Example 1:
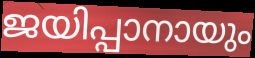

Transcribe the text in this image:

ജയിപ്പാനായും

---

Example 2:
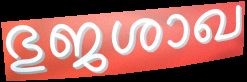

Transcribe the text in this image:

ഭുജശാഖ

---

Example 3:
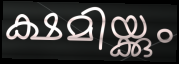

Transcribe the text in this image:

ക്ഷമിയ്ക്കും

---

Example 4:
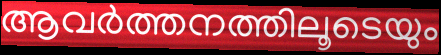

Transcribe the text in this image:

ആവർത്തനത്തിലൂടെയും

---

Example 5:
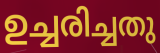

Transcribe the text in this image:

ഉച്ചരിച്ചതു